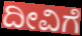
ದೀವಿಗೆ